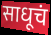
साधूचं